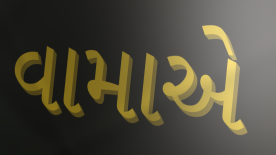
વામાએ